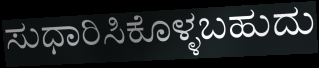
ಸುಧಾರಿಸಿಕೊಳ್ಳಬಹುದು